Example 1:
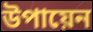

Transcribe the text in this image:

উপায়েন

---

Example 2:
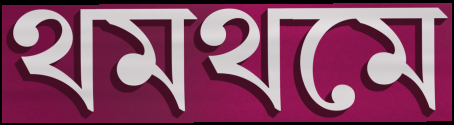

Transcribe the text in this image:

থমথমে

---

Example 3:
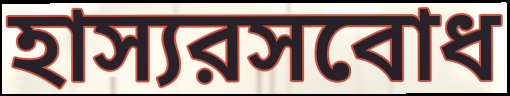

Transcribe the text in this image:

হাস্যরসবোধ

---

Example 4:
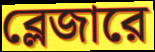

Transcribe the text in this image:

ব্লেজারে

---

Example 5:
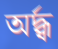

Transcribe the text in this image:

অর্দ্ধ্ব